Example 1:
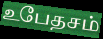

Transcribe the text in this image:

உபேதசம்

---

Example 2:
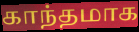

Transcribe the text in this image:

காந்தமாக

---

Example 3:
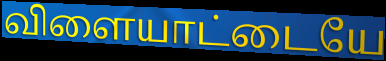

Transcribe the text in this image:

விளையாட்டையே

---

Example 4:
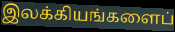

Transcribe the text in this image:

இலக்கியங்களைப்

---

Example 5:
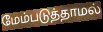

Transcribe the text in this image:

மேம்படுத்தாமல்